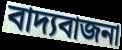
বাদ্যবাজনা